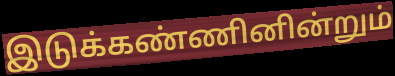
இடுக்கண்ணினின்றும்